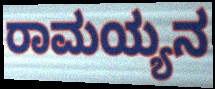
ರಾಮಯ್ಯನ